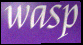
wasp